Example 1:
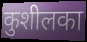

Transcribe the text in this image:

कुशीलका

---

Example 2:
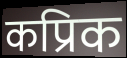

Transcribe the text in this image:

कप्रिक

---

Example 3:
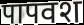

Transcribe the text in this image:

पापवश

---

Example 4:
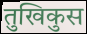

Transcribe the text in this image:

तुखिकुस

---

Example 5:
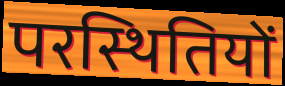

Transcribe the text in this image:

परस्थितियों